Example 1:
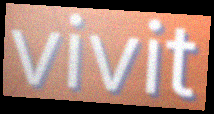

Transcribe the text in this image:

vivit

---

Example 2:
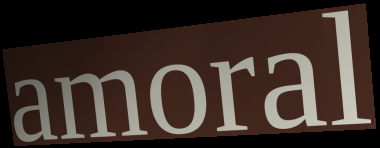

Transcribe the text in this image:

amoral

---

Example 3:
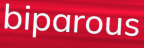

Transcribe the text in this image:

biparous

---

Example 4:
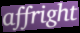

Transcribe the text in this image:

affright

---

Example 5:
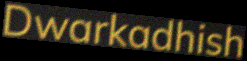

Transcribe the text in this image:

Dwarkadhish